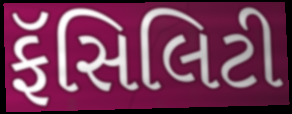
ફૅસિલિટી